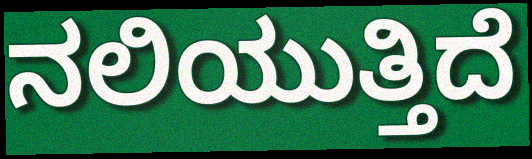
ನಲಿಯುತ್ತಿದೆ